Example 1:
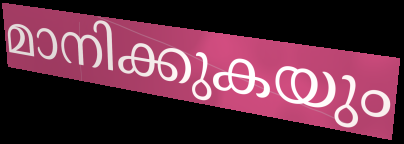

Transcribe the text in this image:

മാനിക്കുകയും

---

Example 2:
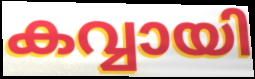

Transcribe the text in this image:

കവ്വായി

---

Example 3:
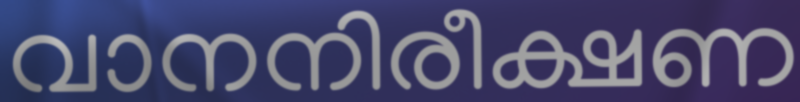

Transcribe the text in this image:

വാനനിരീക്ഷണ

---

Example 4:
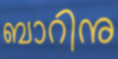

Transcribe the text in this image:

ബാറിനു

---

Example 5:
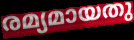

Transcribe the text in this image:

രമ്യമായതു